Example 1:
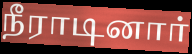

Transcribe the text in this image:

நீராடினார்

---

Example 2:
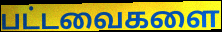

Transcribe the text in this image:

பட்டவைகளை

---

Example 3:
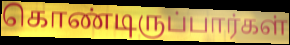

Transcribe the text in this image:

கொண்டிருப்பார்கள்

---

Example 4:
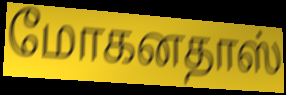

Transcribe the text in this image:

மோகனதாஸ்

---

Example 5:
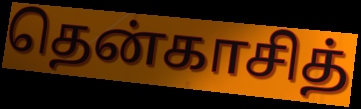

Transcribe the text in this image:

தென்காசித்